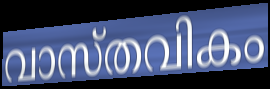
വാസ്തവികം